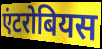
एंटरोबियस